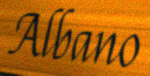
Albano